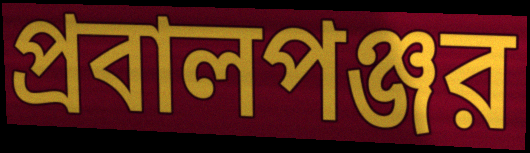
প্রবালপঞ্জর